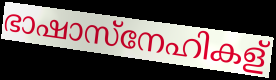
ഭാഷാസ്നേഹികള്